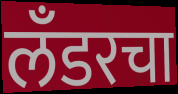
लँडरचा